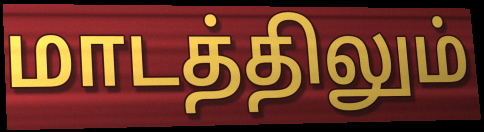
மாடத்திலும்